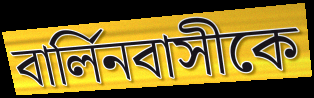
বার্লিনবাসীকে